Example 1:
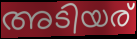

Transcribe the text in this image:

അടിയര്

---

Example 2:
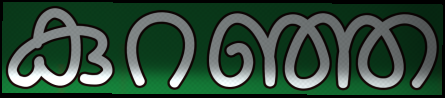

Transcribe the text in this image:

കുറഞ്ഞ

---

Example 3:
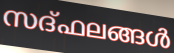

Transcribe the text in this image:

സദ്ഫലങ്ങൾ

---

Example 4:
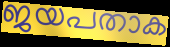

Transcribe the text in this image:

ജയപതാക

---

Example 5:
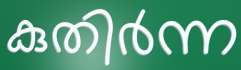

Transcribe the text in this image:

കുതിർന്ന